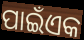
ପାଇଁଏକ